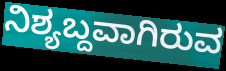
ನಿಶ್ಯಬ್ದವಾಗಿರುವ